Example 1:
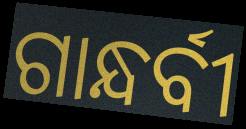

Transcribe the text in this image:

ଗାନ୍ଧର୍ବୀ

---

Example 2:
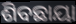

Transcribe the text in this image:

ଶିବଛାୟା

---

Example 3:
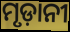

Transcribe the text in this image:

ମୃଡ଼ାନୀ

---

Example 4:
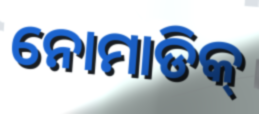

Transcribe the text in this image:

ନୋମାଡିକ୍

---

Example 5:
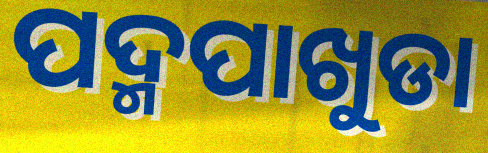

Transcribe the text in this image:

ପଦ୍ମପାଖୁଡା